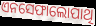
ଏନସେଫାଲୋପାଥି